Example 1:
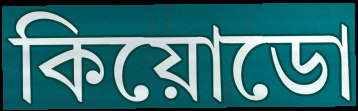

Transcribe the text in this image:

কিয়োডো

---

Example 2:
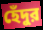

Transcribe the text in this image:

হেঁদুর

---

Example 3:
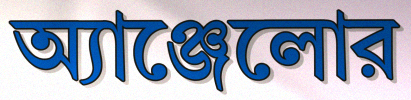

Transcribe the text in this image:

অ্যাঞ্জেলোর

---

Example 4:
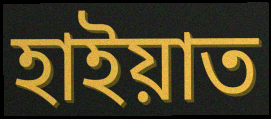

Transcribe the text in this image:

হাইয়াত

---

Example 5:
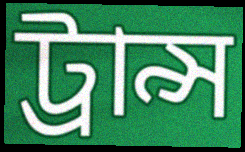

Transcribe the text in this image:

ট্রান্স